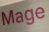
Mage